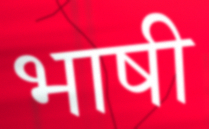
भाषी